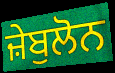
ਜ਼ੇਬੁਲੋਨ